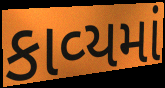
કાવ્‍યમાં